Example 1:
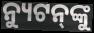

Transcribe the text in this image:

ନ୍ୟୁଟନ୍‌ଙ୍କୁ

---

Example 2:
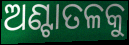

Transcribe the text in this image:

ଅଣ୍ଟାତଳକୁ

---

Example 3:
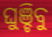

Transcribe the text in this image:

ଘୁଞ୍ଚିବୁ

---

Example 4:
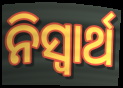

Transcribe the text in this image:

ନିସ୍ୱାର୍ଥ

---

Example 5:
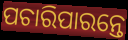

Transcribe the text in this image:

ପଚାରିପାରନ୍ତେ